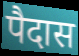
पैदास